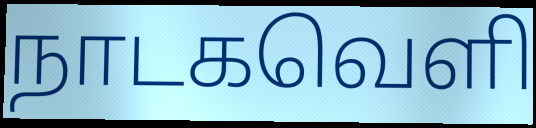
நாடகவெளி